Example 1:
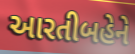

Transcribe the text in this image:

આરતીબહેને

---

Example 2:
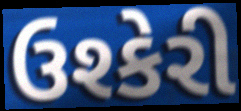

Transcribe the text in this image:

ઉશ્કેરી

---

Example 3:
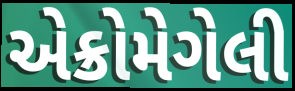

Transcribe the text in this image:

એક્રોમેગેલી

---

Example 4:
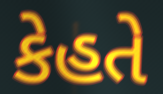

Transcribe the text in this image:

કેહતે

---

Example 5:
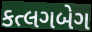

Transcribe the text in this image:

કત્લગબેગ